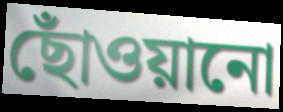
ছোঁওয়ানো